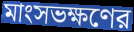
মাংসভক্ষণের